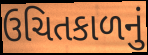
ઉચિતકાળનું